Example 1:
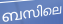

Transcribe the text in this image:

ബസിലെ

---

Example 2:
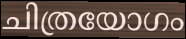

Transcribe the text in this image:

ചിത്രയോഗം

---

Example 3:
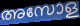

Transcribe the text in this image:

അസോള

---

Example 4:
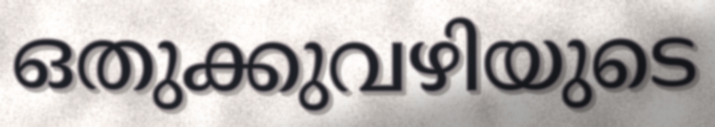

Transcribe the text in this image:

ഒതുക്കുവഴിയുടെ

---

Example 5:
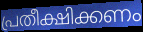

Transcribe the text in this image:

പ്രതീക്ഷിക്കണം